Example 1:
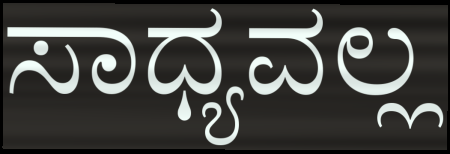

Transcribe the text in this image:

ಸಾಧ್ಯವಲ್ಲ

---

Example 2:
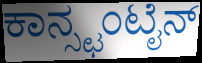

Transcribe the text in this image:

ಕಾನ್ಸ್ಟಂಟೈನ್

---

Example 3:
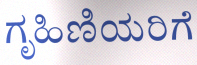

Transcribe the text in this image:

ಗೃಹಿಣಿಯರಿಗೆ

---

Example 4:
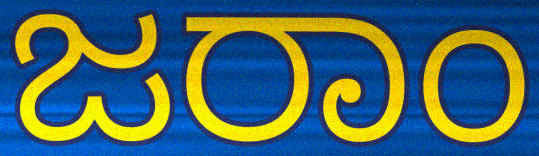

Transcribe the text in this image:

ಜರಾಂ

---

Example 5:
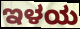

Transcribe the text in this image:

ಇಳಯ